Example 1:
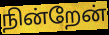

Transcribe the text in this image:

நின்றேன்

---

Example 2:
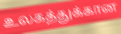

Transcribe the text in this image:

உலகத்துக்கான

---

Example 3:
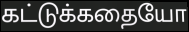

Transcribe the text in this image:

கட்டுக்கதையோ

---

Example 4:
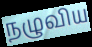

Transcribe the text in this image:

நழுவிய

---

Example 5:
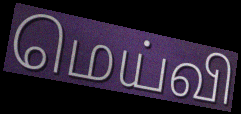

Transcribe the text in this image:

மெய்வி